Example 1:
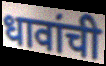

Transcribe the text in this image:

धावांची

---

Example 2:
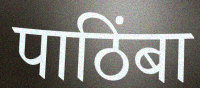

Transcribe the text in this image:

पाठिंबा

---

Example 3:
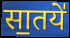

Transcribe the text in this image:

सा॒तये॑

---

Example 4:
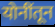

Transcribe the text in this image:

योनींतून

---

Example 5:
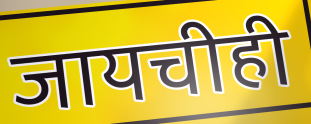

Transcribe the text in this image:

जायचीही